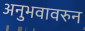
अनुभवावरुन